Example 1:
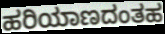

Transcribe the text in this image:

ಹರಿಯಾಣದಂತಹ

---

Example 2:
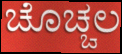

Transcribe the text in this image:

ಚೊಚ್ಚಲ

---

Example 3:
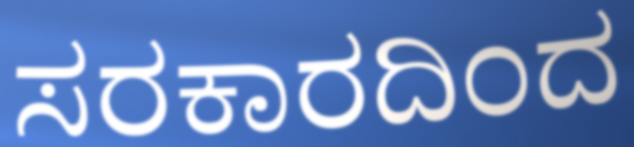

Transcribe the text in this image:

ಸರಕಾರದಿಂದ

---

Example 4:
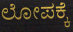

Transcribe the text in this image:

ಲೋಪಕ್ಕೆ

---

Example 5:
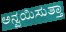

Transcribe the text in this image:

ಅನ್ವಯಿಸುತ್ತಾ